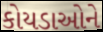
કોયડાઓને